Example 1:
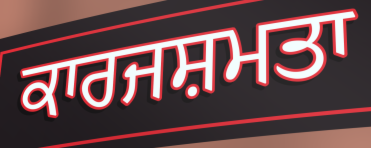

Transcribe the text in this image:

ਕਾਰਜਸ਼ਮਤਾ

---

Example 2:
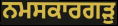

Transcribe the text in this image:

ਨਮਸਕਾਰਗੜੁ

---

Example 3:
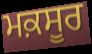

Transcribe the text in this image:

ਮਕ਼ਸੂਰ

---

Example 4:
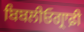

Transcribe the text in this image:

ਬਿਬਲੀਓਗ੍ਰਾਫ਼ੀ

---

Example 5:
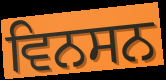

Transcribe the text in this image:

ਵਿਨਸਨ